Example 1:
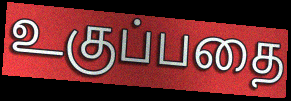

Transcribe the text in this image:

உகுப்பதை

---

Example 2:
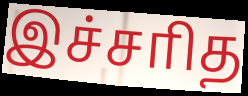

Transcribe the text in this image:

இச்சரித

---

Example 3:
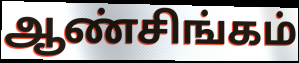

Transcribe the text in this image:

ஆண்சிங்கம்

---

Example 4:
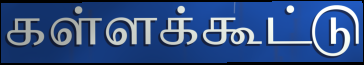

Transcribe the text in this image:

கள்ளக்கூட்டு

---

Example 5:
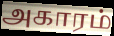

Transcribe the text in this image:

அகாரம்